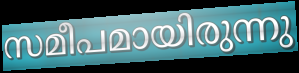
സമീപമായിരുന്നു